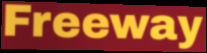
Freeway